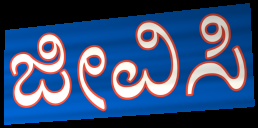
ಜೀವಿಸಿ